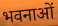
भवनाओं